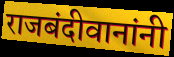
राजबंदीवानांनी